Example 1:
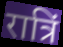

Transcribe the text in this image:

रात्रिं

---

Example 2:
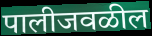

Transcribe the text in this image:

पालीजवळील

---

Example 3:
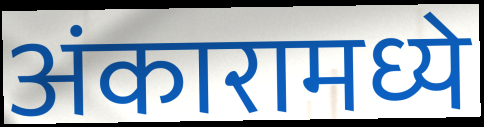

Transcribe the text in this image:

अंकारामध्ये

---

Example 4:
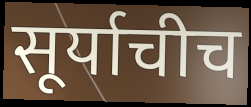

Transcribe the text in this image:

सूर्याचीच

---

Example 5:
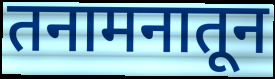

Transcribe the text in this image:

तनामनातून